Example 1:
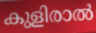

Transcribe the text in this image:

കുളിരാൽ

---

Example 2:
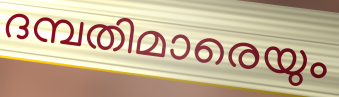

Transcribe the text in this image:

ദമ്പതിമാരെയും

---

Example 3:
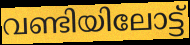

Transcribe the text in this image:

വണ്ടിയിലോട്ട്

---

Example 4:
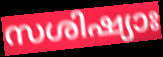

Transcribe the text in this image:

സശിഷ്യാഃ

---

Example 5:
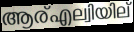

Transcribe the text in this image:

ആര്എല്വിയില്